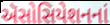
ઍસોસિયેશનનાં